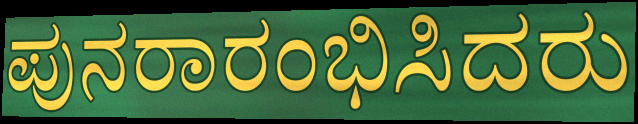
ಪುನರಾರಂಭಿಸಿದರು